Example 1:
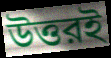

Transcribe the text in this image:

উত্তরই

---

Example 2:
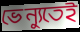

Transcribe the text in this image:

ভেন্যুতেই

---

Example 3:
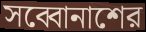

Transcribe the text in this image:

সব্বোনাশের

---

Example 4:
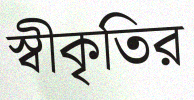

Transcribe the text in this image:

স্বীকৃতির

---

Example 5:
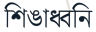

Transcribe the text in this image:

শিঙাধ্বনি